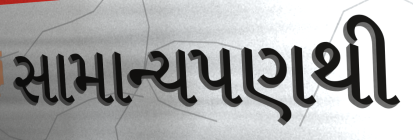
સામાન્યપણથી